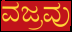
ವಜ್ರವು